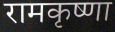
रामकृष्णा